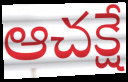
ఆచక్షే